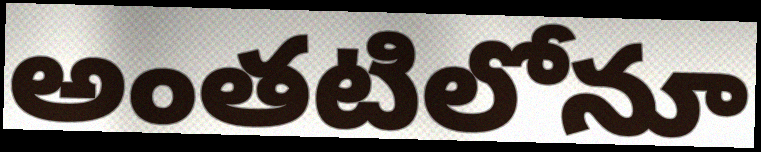
అంతటిలోనూ